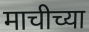
माचीच्या